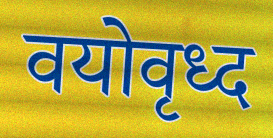
वयोवृध्द